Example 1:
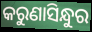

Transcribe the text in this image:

କରୁଣାସିନ୍ଧୁର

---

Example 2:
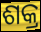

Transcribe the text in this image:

ଶକ୍ର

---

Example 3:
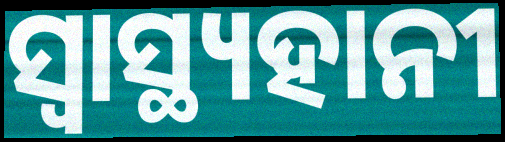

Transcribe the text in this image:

ସ୍ବାସ୍ଥ୍ୟହାନୀ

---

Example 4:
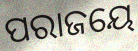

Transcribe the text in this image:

ପରାଜୟେ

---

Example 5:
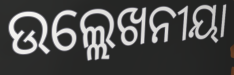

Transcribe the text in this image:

ଉଲ୍ଲେଖନୀୟା